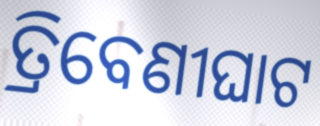
ତ୍ରିବେଣୀଘାଟ